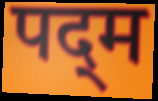
पद्‌म